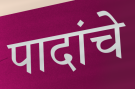
पादांचे